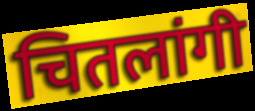
चितलांगी